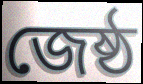
জেষ্ঠ